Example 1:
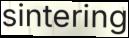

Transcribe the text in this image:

sintering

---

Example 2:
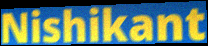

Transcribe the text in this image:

Nishikant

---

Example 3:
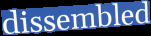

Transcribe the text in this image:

dissembled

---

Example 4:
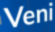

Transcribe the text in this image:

Veni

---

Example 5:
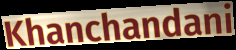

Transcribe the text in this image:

Khanchandani